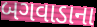
બગવાડાના